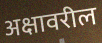
अक्षावरील